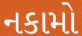
નકામો